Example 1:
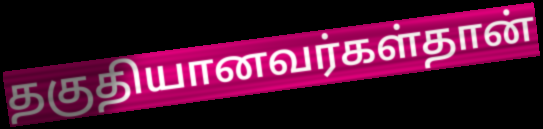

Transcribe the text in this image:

தகுதியானவர்கள்தான்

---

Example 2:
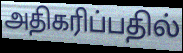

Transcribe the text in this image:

அதிகரிப்பதில்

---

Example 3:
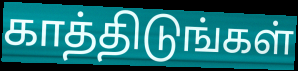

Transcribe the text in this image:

காத்திடுங்கள்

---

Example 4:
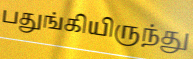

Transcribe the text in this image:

பதுங்கியிருந்து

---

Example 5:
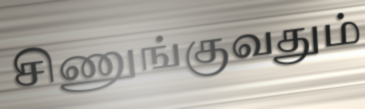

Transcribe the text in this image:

சிணுங்குவதும்